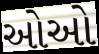
ઓઓ